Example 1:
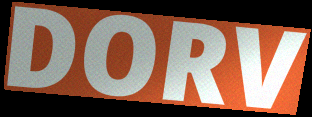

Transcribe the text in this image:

DORV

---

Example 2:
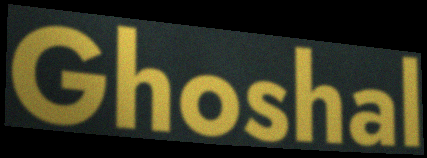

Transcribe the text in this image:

Ghoshal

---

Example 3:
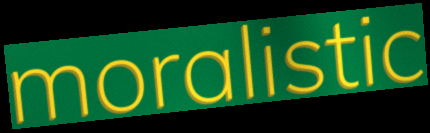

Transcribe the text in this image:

moralistic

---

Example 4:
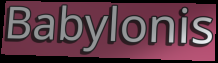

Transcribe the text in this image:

Babylonis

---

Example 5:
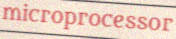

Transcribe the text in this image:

microprocessor